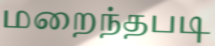
மறைந்தபடி